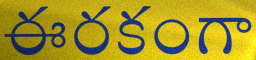
ఈరకంగా